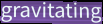
gravitating